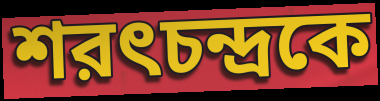
শরৎচন্দ্রকে